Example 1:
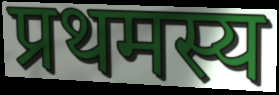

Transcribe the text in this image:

प्रथमस्य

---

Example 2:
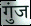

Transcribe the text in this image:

गुंज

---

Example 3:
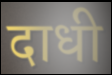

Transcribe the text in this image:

दाधी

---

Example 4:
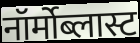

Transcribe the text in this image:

नॉर्मोब्लास्ट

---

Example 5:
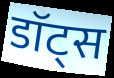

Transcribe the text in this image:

डॉट्स